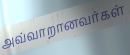
அவ்வாறானவர்கள்